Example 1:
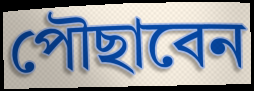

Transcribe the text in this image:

পৌছাবেন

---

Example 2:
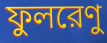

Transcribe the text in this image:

ফুলরেণু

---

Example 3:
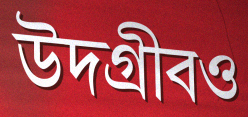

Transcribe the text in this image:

উদগ্রীবও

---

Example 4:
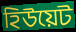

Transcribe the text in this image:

হিউয়েট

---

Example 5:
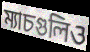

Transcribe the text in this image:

ম্যাচগুলিও